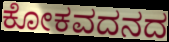
ಕೋಕವದನದ